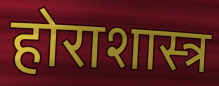
होराशास्त्र